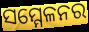
ସମ୍ମେଳନର